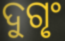
ଦୁଗୃଂ